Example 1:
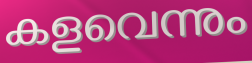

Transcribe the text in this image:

കളവെന്നും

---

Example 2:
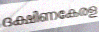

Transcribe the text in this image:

ദക്ഷിണകേരള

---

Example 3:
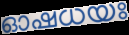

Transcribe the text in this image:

ഓഷധയഃ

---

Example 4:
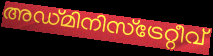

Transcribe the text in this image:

അഡ്മിനിസ്ട്രേറ്റീവ്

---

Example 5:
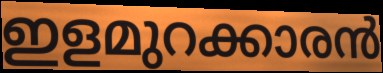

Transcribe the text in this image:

ഇളമുറക്കാരൻ